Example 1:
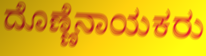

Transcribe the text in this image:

ದೊಣ್ಣೆನಾಯಕರು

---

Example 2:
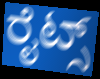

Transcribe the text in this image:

ರೈಟ್ಸ್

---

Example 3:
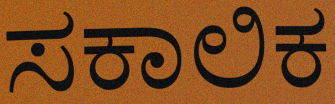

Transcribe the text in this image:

ಸಕಾಲಿಕ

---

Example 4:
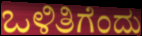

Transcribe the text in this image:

ಒಳಿತಿಗೆಂದು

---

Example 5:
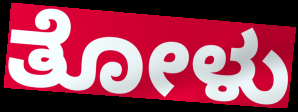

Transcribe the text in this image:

ತೋಳು